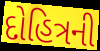
દોહિત્રની